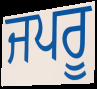
ਜਪਰੂ